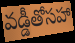
వడ్డీతోసహా